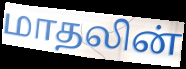
மாதலின்